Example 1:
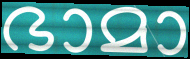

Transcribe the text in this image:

ഭാമാ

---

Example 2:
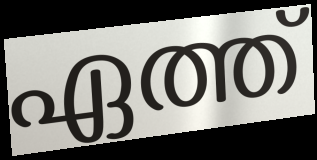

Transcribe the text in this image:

ഏത്ത്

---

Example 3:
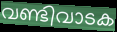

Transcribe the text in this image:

വണ്ടിവാടക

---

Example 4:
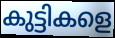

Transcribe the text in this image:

കുട്ടികളെ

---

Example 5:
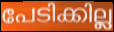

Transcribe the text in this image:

പേടിക്കില്ല